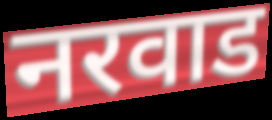
नरवाड